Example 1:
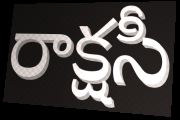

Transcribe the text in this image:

రాక్షసీ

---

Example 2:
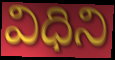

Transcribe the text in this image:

విధిని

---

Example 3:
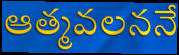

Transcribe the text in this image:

ఆత్మవలననే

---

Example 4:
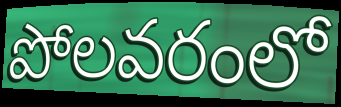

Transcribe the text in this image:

పోలవరంలో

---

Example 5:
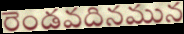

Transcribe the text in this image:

రెండవదినమున